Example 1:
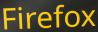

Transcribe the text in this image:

Firefox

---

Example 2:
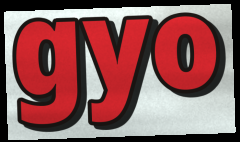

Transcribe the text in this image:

gyo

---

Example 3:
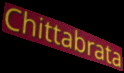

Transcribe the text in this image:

Chittabrata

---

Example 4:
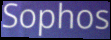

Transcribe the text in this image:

Sophos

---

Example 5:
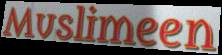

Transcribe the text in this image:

Muslimeen